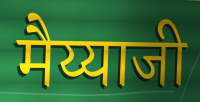
मैय्याजी